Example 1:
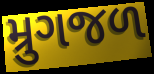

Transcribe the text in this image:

મ્રુગજળ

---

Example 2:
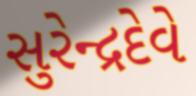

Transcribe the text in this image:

સુરેન્દ્રદેવે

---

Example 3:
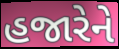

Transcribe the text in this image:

હજારેને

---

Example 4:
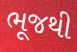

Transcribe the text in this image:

ભૂજથી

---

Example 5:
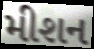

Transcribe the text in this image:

મીશન